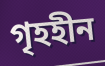
গৃহহীন